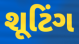
શૂટિંગ